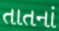
તાતનાં